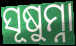
ସୂଷୁମ୍ନା